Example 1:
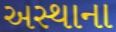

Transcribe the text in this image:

અસ્થાના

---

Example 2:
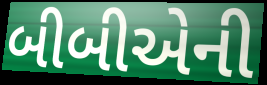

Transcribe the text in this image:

બીબીએની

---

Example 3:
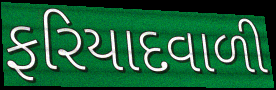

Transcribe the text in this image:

ફરિયાદવાળી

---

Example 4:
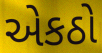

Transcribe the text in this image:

એકઠો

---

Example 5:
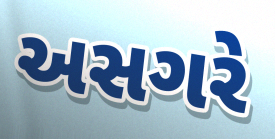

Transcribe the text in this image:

અસગરે